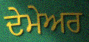
ਦੇਮੇਅਰ